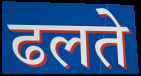
ढलते